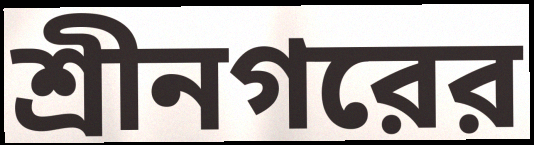
শ্রীনগরের